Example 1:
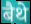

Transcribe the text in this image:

बैथे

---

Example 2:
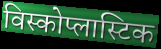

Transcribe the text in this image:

विस्कोप्लास्टिक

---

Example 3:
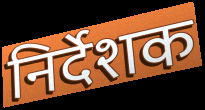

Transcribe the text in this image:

निर्देशक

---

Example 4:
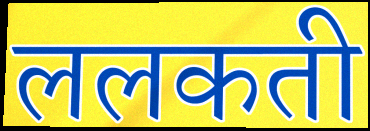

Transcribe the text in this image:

ललकती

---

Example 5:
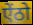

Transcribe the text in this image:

ऐंठो